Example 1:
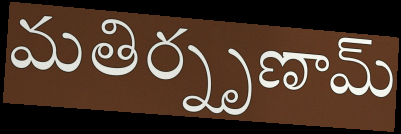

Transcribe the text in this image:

మతిర్నృణామ్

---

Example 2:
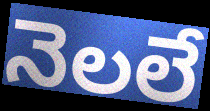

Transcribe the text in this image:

నెలలే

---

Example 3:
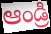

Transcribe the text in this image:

ఆండ్రి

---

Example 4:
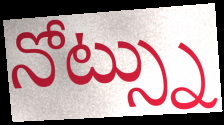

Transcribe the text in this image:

నోట్స్ను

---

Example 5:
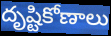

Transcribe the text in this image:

దృష్టికోణాలు